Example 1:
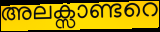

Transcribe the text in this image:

അലക്സാണ്ടറെ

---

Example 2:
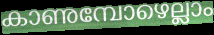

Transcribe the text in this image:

കാണുമ്പോഴെല്ലാം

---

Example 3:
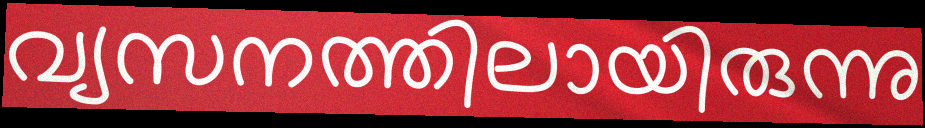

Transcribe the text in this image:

വ്യസനത്തിലായിരുന്നു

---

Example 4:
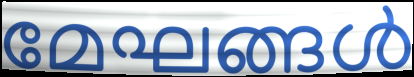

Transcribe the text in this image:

മേഘങ്ങൾ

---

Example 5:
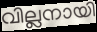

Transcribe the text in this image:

വില്ലനായി